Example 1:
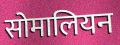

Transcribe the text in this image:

सोमालियन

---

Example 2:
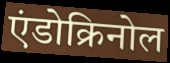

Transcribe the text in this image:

एंडोक्रिनोल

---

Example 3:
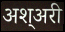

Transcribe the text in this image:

अश्अरी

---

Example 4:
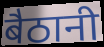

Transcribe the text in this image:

बैठानी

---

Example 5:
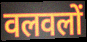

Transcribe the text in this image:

वलवलों